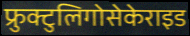
फ्रुक्टुलिगोसेकेराइड